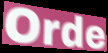
Orde